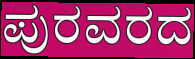
ಪುರವರದ